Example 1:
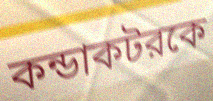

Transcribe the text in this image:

কন্ডাকটরকে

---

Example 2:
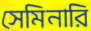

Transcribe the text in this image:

সেমিনারি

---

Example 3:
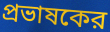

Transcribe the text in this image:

প্রভাষকের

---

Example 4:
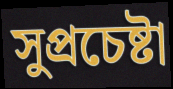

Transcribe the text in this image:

সুপ্রচেষ্টা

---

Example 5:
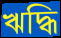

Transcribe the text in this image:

ঋদ্ধি